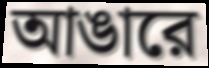
আঙারে